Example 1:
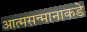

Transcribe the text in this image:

आत्मसन्मानाकडे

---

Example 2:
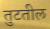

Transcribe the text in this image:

तुटतील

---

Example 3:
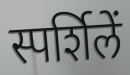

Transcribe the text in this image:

स्पर्शिलें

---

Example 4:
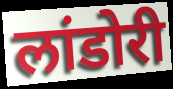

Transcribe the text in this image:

लांडोरी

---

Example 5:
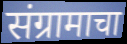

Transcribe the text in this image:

संग्रामाचा